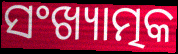
ସଂଖ୍ୟାତ୍ମକ